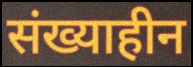
संख्याहीन